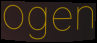
ogen